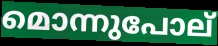
മൊന്നുപോല്